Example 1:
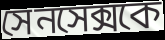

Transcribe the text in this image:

সেনসেক্সকে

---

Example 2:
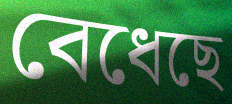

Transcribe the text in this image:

বেধেছে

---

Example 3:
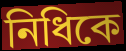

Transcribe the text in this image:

নিধিকে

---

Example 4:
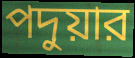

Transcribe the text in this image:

পদুয়ার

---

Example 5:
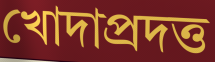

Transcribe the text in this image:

খোদাপ্রদত্ত